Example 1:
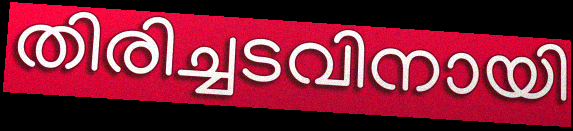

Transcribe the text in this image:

തിരിച്ചടവിനായി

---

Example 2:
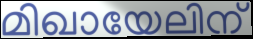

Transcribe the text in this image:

മിഖായേലിന്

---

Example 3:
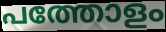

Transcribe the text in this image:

പത്തോളം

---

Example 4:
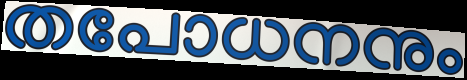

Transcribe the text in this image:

തപോധനനും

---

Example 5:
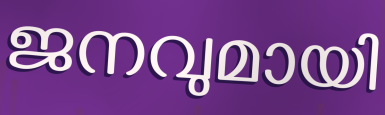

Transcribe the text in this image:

ജനവുമായി